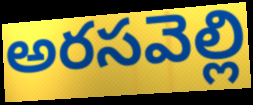
అరసవెల్లి